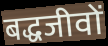
बद्धजीवों